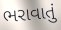
ભરાવાતું